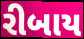
રીબાય